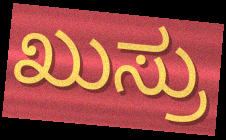
ಖುಸ್ರು